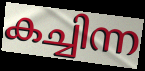
കച്ചിന്ന